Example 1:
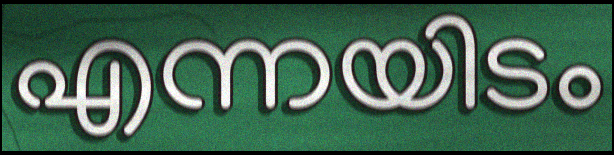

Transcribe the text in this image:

എന്നയിടം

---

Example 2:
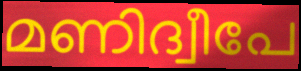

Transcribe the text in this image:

മണിദ്വീപേ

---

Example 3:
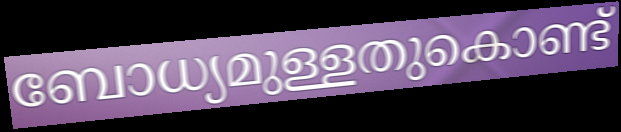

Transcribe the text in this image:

ബോധ്യമുള്ളതുകൊണ്ട്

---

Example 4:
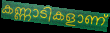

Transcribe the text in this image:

കണ്ണാടികളാണ്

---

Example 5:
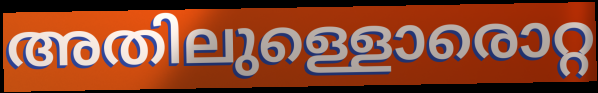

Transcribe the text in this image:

അതിലുള്ളൊരൊറ്റ